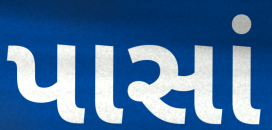
પાસાં